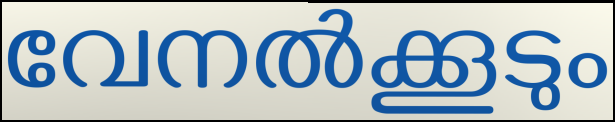
വേനൽക്കൂടും